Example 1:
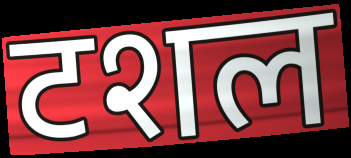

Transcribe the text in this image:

टशल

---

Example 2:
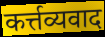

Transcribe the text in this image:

कर्त्तव्यवाद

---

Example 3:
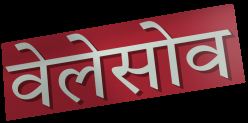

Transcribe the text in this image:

वेलेसोव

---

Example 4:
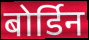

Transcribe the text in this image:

बोर्डिन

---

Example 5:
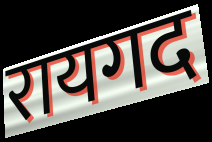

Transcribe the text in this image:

रायगद